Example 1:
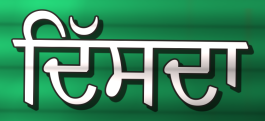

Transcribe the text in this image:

ਦਿੱਸਦਾ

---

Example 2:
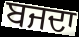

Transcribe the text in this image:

ਬਜਦਾ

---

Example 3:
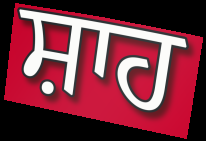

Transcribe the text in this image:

ਸ਼ਾਹ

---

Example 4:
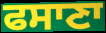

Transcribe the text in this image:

ਫਸਾਣਾ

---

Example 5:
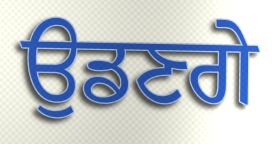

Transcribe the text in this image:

ਉਡਣਗੇ